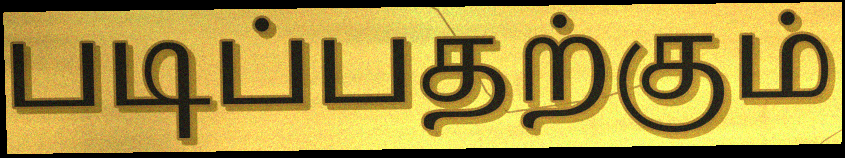
படிப்பதற்கும்